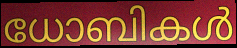
ധോബികൾ